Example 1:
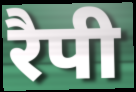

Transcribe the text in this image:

रैपी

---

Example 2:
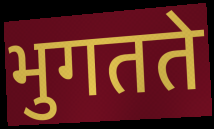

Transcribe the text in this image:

भुगतते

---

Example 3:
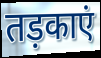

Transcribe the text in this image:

तड़काएं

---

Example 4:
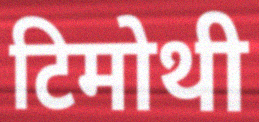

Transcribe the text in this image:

टिमोथी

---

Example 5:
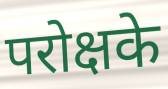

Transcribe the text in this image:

परोक्षके